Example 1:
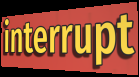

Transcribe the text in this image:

interrupt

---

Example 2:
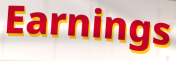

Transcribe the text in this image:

Earnings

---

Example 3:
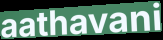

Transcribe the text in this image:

aathavani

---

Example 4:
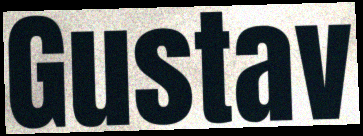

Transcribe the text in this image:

Gustav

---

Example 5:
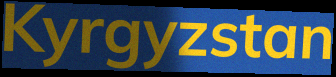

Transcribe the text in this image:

Kyrgyzstan